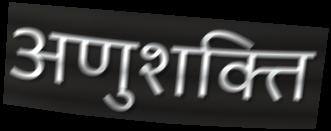
अणुशक्ति